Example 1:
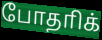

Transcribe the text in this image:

போதரிக்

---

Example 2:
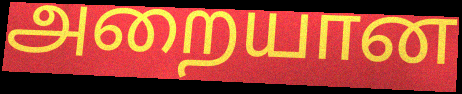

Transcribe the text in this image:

அறையான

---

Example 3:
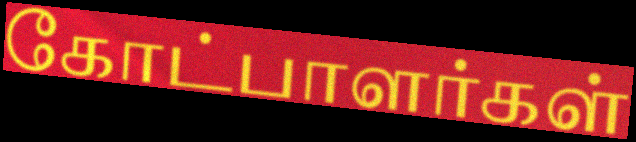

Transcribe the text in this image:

கோட்பாளர்கள்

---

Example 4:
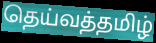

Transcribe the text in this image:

தெய்வத்தமிழ்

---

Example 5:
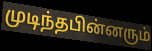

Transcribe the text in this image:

முடிந்தபின்னரும்